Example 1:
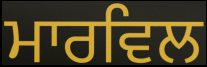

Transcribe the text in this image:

ਮਾਰਵਿਲ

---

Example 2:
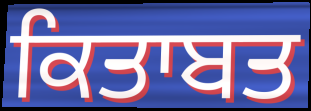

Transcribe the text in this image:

ਕਿਤਾਬਤ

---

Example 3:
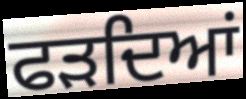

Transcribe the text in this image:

ਫੜਦਿਆਂ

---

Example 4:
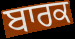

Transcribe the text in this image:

ਬਾਰਕ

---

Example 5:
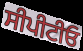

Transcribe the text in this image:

ਸੀਪੀਟੀਓ